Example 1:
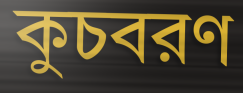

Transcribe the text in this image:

কুচবরণ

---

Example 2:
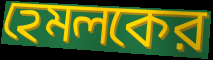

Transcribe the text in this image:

হেমলকের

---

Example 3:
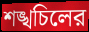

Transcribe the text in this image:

শঙ্খচিলের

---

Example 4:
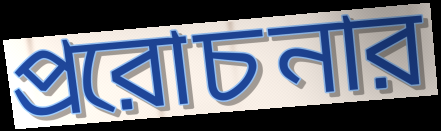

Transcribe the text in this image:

প্ররোচনার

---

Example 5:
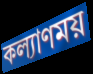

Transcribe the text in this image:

কল্যাণময়